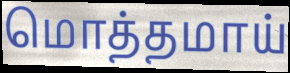
மொத்தமாய்